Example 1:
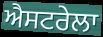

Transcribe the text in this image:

ਐਸਟਰੇਲਾ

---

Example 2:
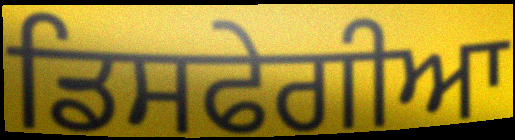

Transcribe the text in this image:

ਡਿਸਫੇਗੀਆ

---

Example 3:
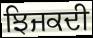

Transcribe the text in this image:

ਝਿਜਕਦੀ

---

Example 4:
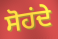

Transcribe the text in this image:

ਸੋਹਂਦੇ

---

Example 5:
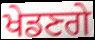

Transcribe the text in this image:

ਖੇਡਣਗੇ